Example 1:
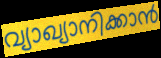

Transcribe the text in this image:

വ്യാഖ്യാനിക്കാൻ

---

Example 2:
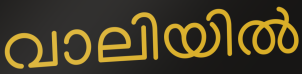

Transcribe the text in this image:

വാലിയിൽ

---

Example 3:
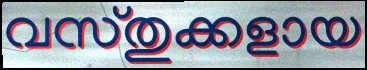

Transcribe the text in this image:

വസ്തുക്കളായ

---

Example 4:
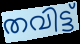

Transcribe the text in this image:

തവിട്ട്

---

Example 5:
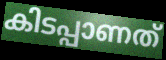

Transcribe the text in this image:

കിടപ്പാണത്